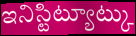
ఇనిస్టిట్యూట్కు